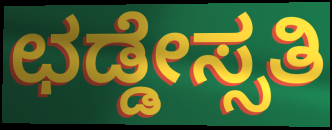
ಛಡ್ಡೇಸ್ಸತಿ